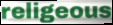
religeous